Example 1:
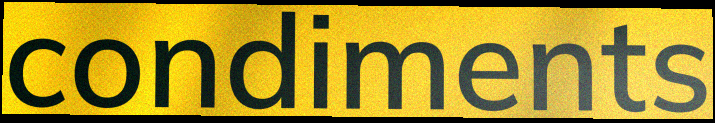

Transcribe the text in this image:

condiments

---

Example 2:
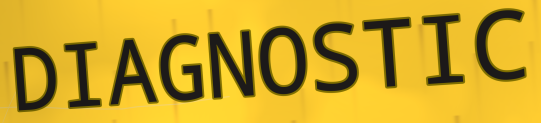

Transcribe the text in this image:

DIAGNOSTIC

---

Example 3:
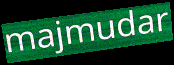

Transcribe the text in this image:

majmudar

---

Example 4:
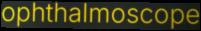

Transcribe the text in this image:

ophthalmoscope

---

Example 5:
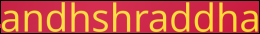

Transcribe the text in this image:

andhshraddha